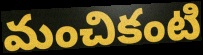
మంచికంటి